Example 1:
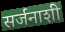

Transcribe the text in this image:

सर्जनाशी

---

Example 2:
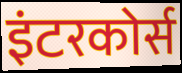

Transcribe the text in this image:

इंटरकोर्स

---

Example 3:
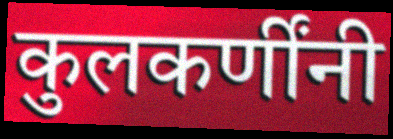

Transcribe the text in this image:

कुलकर्णींनी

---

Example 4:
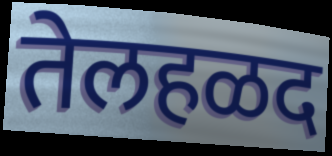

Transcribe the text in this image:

तेलहळद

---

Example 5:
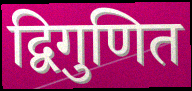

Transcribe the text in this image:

द्विगुणित